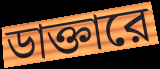
ডাক্তারে